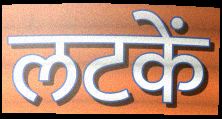
लटकें